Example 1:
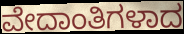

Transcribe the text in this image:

ವೇದಾಂತಿಗಳಾದ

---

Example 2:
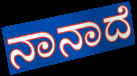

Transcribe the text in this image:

ನಾನಾದೆ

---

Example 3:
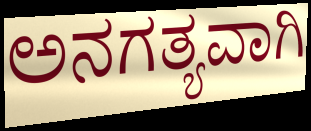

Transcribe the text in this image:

ಅನಗತ್ಯವಾಗಿ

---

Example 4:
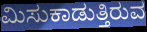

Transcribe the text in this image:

ಮಿಸುಕಾಡುತ್ತಿರುವ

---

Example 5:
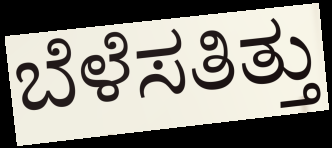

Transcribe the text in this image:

ಬೆಳೆಸತಿತ್ತು